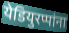
येडियुरप्पांना